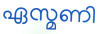
ഏസ്മണി